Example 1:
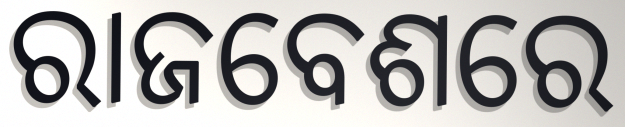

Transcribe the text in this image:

ରାଜବେଶରେ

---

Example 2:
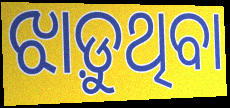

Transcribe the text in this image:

ଝାଡ଼ୁଥିବା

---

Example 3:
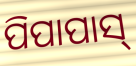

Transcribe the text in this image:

ପିପାପାସ୍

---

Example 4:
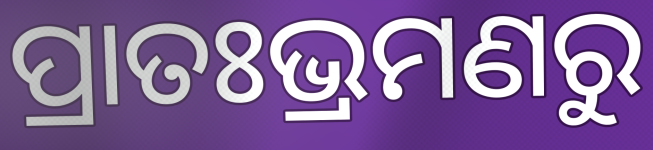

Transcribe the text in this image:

ପ୍ରାତଃଭ୍ରମଣରୁ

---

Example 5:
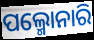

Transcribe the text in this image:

ପଲ୍ମୋନାରି